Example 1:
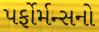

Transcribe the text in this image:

પર્ફોર્મન્સનો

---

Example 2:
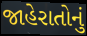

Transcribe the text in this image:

જાહેરાતોનું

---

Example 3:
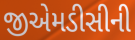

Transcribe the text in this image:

જીએમડીસીની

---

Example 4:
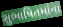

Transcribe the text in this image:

સુભાષિતમાંના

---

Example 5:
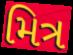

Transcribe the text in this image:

મિત્ર